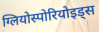
ग्लियोस्पोरियोइड्स